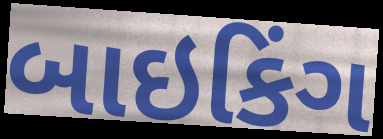
બાઇકિંગ